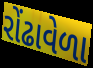
રોંઢાવેળા